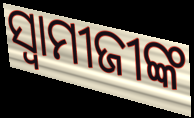
ସ୍ୱାମୀଜୀଙ୍କ